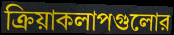
ক্রিয়াকলাপগুলোর